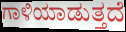
ಗಾಳಿಯಾಡುತ್ತದೆ